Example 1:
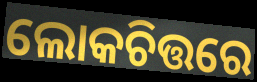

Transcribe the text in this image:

ଲୋକଚିତ୍ତରେ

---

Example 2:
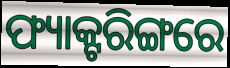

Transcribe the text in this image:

ଫ୍ୟାକ୍ଟରିଙ୍ଗରେ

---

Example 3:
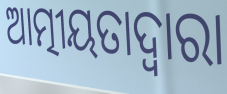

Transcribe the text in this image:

ଆତ୍ମୀୟତାଦ୍ଵାରା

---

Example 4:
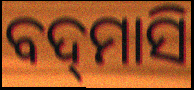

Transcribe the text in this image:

ବଦ୍‌ମାସି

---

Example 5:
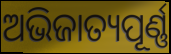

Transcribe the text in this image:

ଅଭିଜାତ୍ୟପୂର୍ଣ୍ଣ